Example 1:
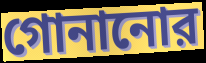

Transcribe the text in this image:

গোনানোর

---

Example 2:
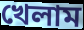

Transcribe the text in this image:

খেলাম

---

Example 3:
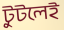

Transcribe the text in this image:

টুটলেই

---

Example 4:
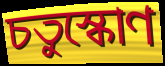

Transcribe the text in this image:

চতুস্কোণ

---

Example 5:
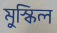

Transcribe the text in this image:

মুস্কিল